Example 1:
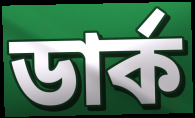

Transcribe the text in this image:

ডাৰ্ক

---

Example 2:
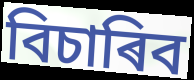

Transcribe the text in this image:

বিচাৰিব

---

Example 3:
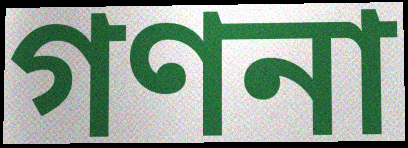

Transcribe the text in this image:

গণনা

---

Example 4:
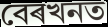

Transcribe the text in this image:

বেৰখনত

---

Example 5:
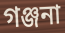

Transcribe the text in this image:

গঞ্জনা